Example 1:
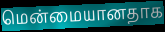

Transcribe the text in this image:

மென்மையானதாக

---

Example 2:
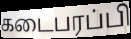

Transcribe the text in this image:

கடைபரப்பி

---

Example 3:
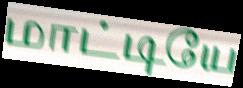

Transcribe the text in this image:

மாட்டியே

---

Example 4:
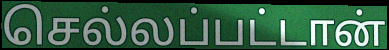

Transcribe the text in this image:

செல்லப்பட்டான்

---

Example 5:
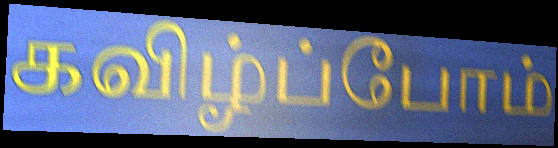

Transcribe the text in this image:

கவிழ்ப்போம்